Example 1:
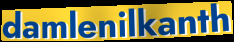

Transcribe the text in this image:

damlenilkanth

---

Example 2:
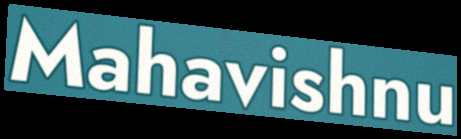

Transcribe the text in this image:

Mahavishnu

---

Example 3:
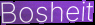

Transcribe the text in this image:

Bosheit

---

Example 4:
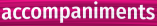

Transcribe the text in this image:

accompaniments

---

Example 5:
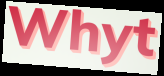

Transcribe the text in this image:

Whyt